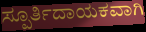
ಸ್ಪೂರ್ತಿದಾಯಕವಾಗಿ